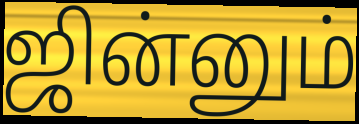
ஜின்னும்